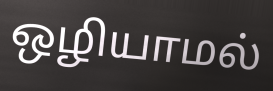
ஒழியாமல்